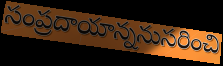
సంప్రదాయాన్ననుసరించి